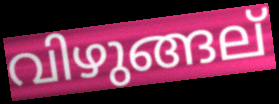
വിഴുങ്ങല്